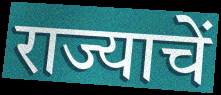
राज्याचें